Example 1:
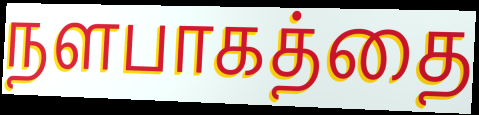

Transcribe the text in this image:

நளபாகத்தை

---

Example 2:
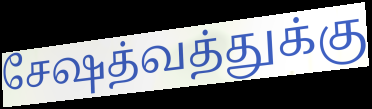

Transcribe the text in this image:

சேஷத்வத்துக்கு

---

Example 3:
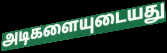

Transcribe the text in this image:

அடிகளையுடையது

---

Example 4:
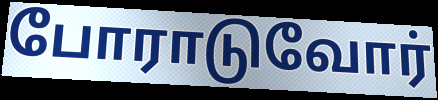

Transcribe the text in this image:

போராடுவோர்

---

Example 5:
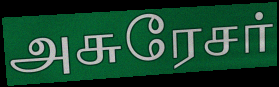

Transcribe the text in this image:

அசுரேசர்